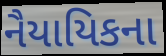
નૈયાયિકના